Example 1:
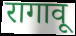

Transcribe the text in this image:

रागावू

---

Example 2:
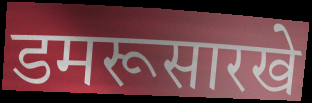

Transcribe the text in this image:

डमरूसारखे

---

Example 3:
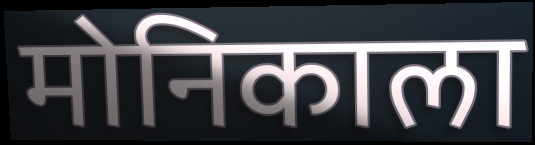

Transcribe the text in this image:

मोनिकाला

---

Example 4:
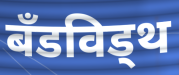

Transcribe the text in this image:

बँडविड्थ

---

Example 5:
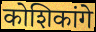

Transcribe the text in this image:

कोशिकांगे